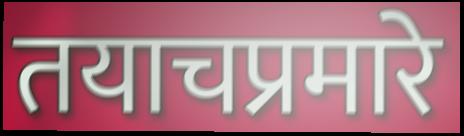
तयाचप्रमारे